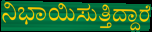
ನಿಭಾಯಿಸುತ್ತಿದ್ದಾರೆ